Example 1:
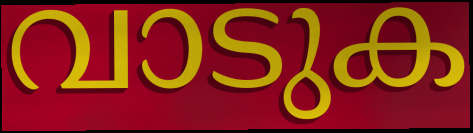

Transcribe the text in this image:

വാടുക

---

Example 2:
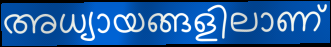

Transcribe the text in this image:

അധ്യായങ്ങളിലാണ്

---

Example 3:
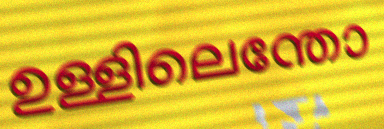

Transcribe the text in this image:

ഉള്ളിലെന്തോ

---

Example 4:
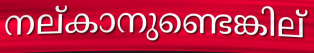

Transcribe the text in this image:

നല്കാനുണ്ടെങ്കില്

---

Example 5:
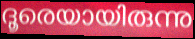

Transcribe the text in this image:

ദൂരെയായിരുന്നു